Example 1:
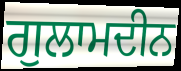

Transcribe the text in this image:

ਗੁਲਾਮਦੀਨ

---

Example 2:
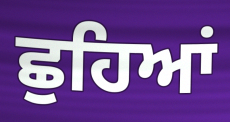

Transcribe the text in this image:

ਛੁਹਿਆਂ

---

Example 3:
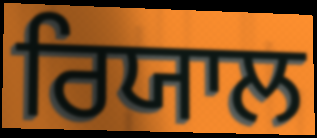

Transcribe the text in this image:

ਰਿਯਾਲ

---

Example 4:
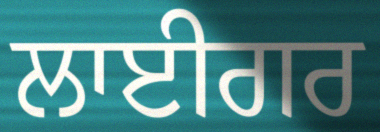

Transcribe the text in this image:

ਲਾਈਗਰ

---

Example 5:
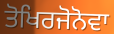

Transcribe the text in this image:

ਤੋਖਿਰਜੋਨੋਵਾ